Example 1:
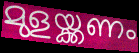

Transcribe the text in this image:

മുളയ്ക്കണം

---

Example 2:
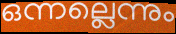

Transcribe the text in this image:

ഒന്നല്ലെന്നും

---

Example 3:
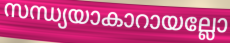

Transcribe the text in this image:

സന്ധ്യയാകാറായല്ലോ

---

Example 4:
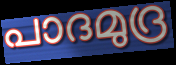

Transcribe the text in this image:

പാദമുദ്ര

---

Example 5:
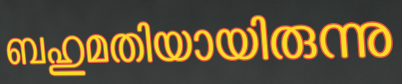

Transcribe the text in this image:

ബഹുമതിയായിരുന്നു